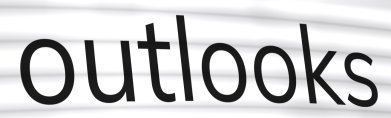
outlooks